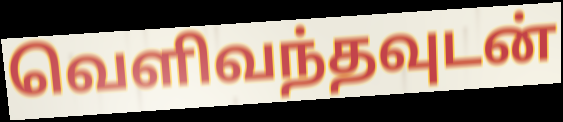
வெளிவந்தவுடன்